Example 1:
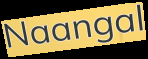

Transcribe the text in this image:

Naangal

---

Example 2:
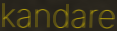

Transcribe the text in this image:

kandare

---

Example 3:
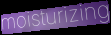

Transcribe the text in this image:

moisturizing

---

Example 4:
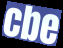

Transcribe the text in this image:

cbe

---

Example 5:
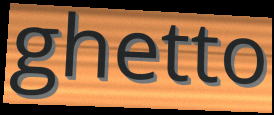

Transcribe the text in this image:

ghetto